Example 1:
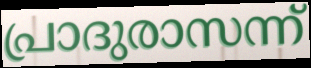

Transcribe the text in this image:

പ്രാദുരാസന്ന്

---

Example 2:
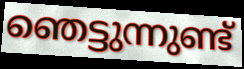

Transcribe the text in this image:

ഞെട്ടുന്നുണ്ട്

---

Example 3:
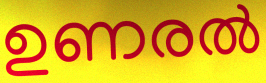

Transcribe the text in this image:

ഉണരൽ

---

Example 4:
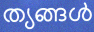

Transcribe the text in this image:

ത്യങ്ങൾ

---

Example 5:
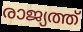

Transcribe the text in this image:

രാജ്യത്ത്